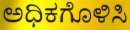
ಅಧಿಕಗೊಳಿಸಿ